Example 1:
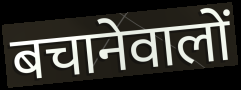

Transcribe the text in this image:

बचानेवालों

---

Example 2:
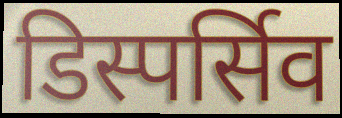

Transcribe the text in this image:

डिस्पर्सिव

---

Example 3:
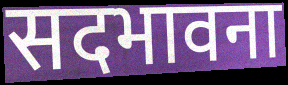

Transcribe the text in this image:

सदभावना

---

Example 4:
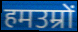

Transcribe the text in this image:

हमउम्रों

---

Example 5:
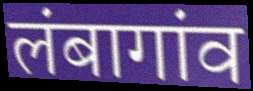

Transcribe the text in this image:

लंबागांव